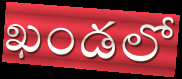
ఖండలో